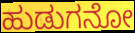
ಹುಡುಗನೋ